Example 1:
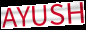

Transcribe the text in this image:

AYUSH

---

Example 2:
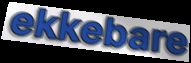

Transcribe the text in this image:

ekkebare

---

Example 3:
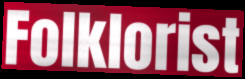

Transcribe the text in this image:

Folklorist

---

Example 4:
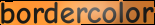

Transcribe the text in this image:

bordercolor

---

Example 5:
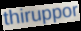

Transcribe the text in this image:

thiruppor